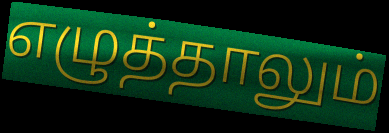
எழுத்தாலும்